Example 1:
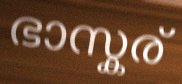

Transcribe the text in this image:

ഭാസ്കര്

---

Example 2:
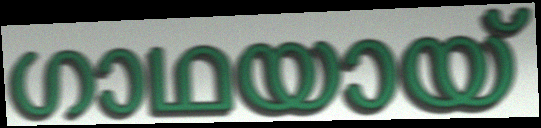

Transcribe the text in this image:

ഗാഥയായ്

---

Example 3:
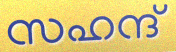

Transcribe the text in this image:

സഹന്ദ്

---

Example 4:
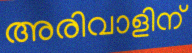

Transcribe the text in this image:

അരിവാളിന്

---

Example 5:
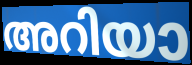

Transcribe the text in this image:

അറിയാ